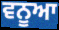
ਵਨੂਆ